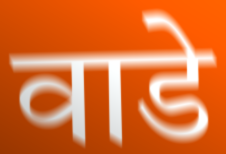
वाडे